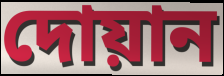
দোয়ান